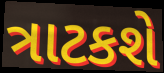
ત્રાટકશે